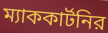
ম্যাককার্টনির